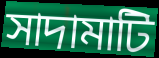
সাদামাটি